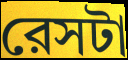
রেসটা